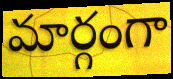
మార్గంగా